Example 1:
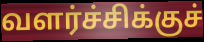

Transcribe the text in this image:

வளர்ச்சிக்குச்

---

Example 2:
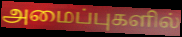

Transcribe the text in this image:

அமைப்புகளில்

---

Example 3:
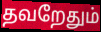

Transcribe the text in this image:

தவறேதும்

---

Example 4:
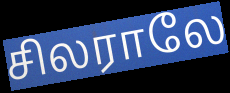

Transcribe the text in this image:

சிலராலே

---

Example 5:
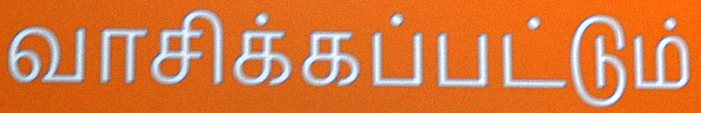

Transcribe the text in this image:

வாசிக்கப்பட்டும்